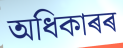
অধিকাৰৰ